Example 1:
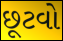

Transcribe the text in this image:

છૂટવો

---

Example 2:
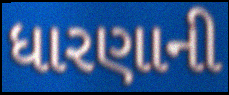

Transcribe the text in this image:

ધારણાની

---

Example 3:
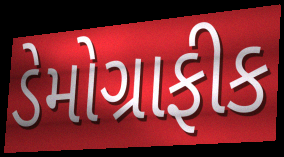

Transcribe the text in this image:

ડેમોગ્રાફીક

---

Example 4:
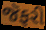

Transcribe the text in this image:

જૅફરી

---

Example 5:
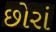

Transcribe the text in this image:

છોરાં